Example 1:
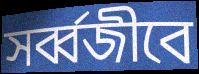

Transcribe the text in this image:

সর্ব্বজীবে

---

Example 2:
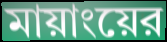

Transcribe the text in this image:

মায়াংয়ের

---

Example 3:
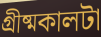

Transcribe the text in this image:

গ্রীষ্মকালটা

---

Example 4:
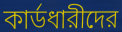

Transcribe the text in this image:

কার্ডধারীদের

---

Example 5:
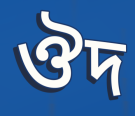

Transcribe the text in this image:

ঔদ